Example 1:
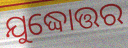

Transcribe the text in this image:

ଯୁଦ୍ଧୋତ୍ତର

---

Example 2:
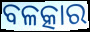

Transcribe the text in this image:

ବଳତ୍କାର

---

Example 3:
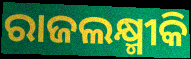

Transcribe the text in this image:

ରାଜଲକ୍ଷ୍ମୀକି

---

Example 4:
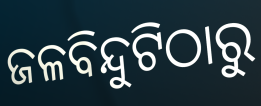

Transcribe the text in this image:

ଜଳବିନ୍ଦୁଟିଠାରୁ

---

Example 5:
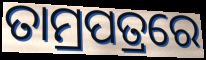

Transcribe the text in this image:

ତାମ୍ରପତ୍ରରେ